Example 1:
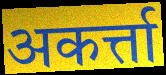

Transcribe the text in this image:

अकर्त्ता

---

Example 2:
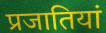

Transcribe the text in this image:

प्रजातियां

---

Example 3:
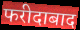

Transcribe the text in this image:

फरीदाबाद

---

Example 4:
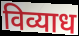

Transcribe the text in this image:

विव्याध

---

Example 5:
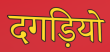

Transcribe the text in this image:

दगड़ियो